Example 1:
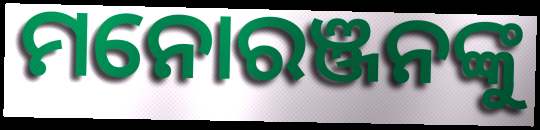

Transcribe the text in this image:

ମନୋରଞ୍ଜନଙ୍କୁ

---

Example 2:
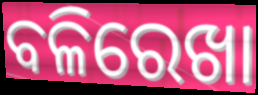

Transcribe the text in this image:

ବଳିରେଖା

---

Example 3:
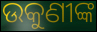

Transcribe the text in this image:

ଉକୁଣୀଙ୍କ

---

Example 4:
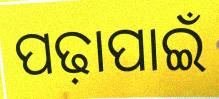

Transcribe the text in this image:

ପଢ଼ାପାଇଁ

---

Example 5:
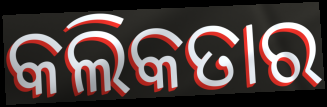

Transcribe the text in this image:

କଲିକତାର